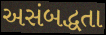
અસંબદ્ધતા